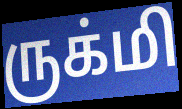
ருக்மி